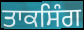
ਤਾਕਸਿੰਗ